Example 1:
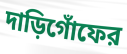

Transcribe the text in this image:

দাড়িগোঁফের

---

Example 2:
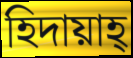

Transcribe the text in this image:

হিদায়াহ্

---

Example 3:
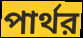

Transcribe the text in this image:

পার্থর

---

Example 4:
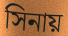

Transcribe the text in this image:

সিনায়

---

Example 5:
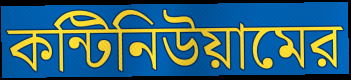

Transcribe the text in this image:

কন্টিনিউয়ামের